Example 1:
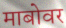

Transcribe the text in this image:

माबोवर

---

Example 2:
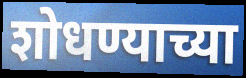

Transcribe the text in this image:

शोधण्याच्या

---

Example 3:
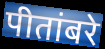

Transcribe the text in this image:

पीतांबरे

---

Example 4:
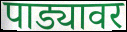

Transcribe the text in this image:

पाड्यावर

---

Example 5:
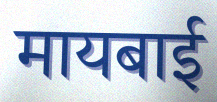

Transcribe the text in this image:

मायबाई